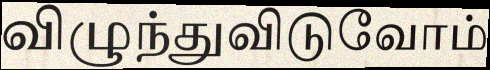
விழுந்துவிடுவோம்